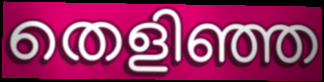
തെളിഞ്ഞ